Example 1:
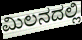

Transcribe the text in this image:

ಮಿಲನದಲ್ಲಿ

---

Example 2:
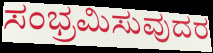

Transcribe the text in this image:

ಸಂಭ್ರಮಿಸುವುದರ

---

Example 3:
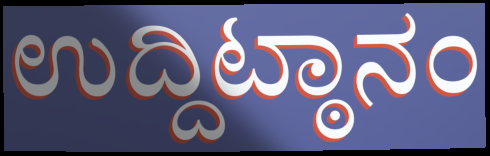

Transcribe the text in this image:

ಉದ್ದಿಟ್ಠಾನಂ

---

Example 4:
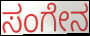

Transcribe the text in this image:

ಸಂಗೇನ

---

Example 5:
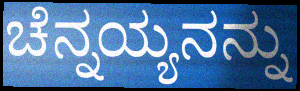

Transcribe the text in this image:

ಚೆನ್ನಯ್ಯನನ್ನು